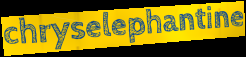
chryselephantine